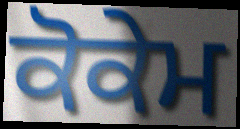
ਕੋਕੇਮ